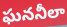
ఘననీలా